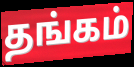
தங்கம்